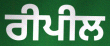
ਰੀਪੀਲ